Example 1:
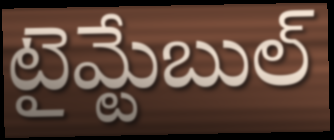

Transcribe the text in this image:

టైమ్టేబుల్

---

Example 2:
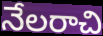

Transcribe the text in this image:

నేలరాచి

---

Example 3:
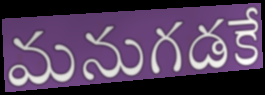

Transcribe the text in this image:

మనుగడకే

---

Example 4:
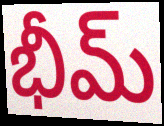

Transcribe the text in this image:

భీమ్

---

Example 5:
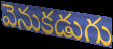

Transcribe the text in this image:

వెనుకడుగు